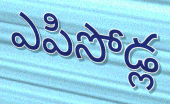
ఎపిసోడ్ల